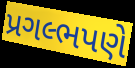
પ્રગલ્ભપણે